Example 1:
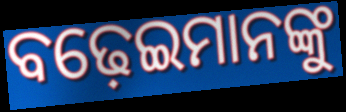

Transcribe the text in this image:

ବଢ଼େଇମାନଙ୍କୁ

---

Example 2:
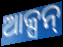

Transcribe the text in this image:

ଆକ୍ସନ୍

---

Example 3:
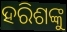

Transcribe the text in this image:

ହରିଶଙ୍କୁ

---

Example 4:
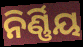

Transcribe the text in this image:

ନିର୍ଣ୍ଣିୟ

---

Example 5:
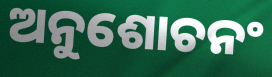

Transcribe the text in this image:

ଅନୁଶୋଚନଂ